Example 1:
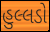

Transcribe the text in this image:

હુલ્લડો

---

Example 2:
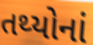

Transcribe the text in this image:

તથ્યોનાં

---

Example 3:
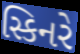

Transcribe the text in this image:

સ્કિનરે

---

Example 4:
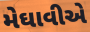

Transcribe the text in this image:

મેઘાવીએ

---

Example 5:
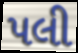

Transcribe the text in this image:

પલી